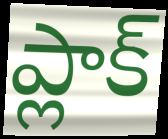
ప్లాక్